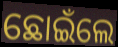
ଛୋଇଁଲେ